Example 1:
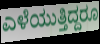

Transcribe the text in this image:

ಎಳೆಯುತ್ತಿದ್ದರೂ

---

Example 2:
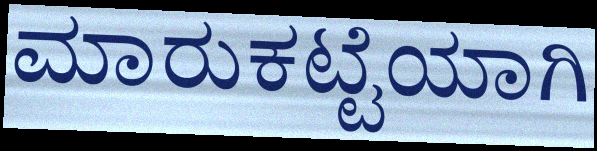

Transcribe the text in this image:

ಮಾರುಕಟ್ಟೆಯಾಗಿ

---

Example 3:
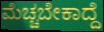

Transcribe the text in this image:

ಮೆಚ್ಚಬೇಕಾದ್ದೆ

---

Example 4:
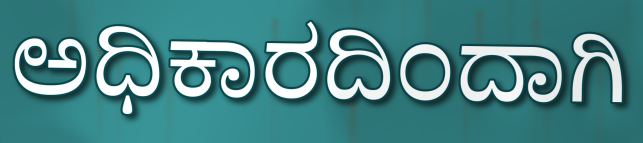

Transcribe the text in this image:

ಅಧಿಕಾರದಿಂದಾಗಿ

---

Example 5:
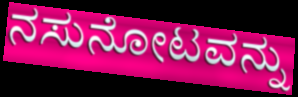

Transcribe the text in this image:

ನಸುನೋಟವನ್ನು